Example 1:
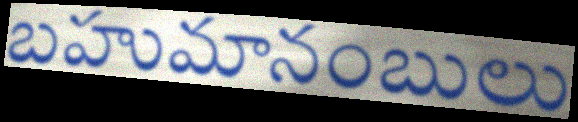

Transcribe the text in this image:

బహుమానంబులు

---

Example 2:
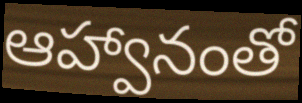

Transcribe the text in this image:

ఆహ్వానంతో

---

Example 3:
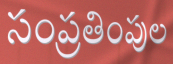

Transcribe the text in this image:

సంప్రతింపుల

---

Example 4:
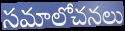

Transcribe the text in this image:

సమాలోచనలు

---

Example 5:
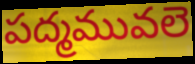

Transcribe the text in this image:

పద్మమువలె